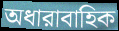
অধারাবাহিক